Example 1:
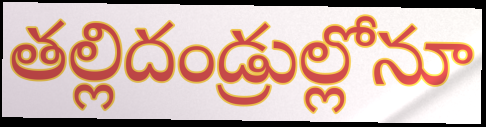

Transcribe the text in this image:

తల్లిదండ్రుల్లోనూ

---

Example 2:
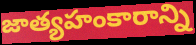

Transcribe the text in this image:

జాత్యహంకారాన్ని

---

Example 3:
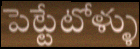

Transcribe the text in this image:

పెట్టేటోళ్ళు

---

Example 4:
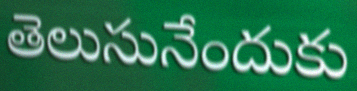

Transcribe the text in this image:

తెలుసునేందుకు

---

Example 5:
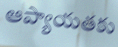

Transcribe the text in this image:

ఆప్యాయతకు